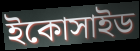
ইকোসাইড